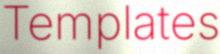
Templates